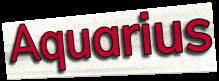
Aquarius